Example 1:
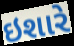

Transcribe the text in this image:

ઇશારે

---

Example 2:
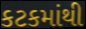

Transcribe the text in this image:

કટકમાંથી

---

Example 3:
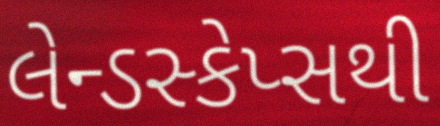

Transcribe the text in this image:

લેન્ડસ્કેપ્સથી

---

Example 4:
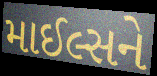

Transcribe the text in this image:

માઈલ્સને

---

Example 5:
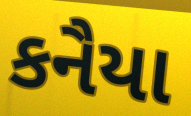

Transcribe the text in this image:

કનૈયા